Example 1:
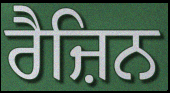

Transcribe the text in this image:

ਰੈਜ਼ਿਨ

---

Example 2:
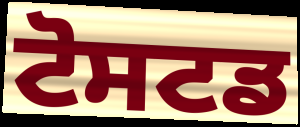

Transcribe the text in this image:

ਟੋਸਟਡ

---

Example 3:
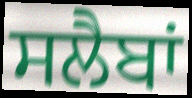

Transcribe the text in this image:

ਸਲੈਬਾਂ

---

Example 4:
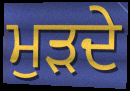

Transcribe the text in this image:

ਮੁਡ਼ਦੇ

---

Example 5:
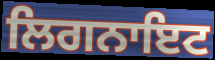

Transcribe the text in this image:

ਲਿਗਨਾਇਟ